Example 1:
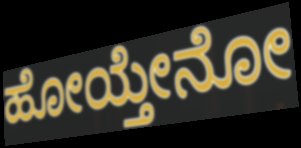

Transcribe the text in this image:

ಹೋಯ್ತೇನೋ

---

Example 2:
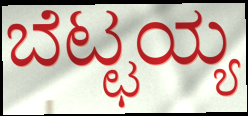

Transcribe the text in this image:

ಬೆಟ್ಟಯ್ಯ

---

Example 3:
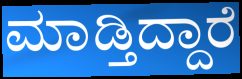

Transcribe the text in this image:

ಮಾಡ್ತಿದ್ದಾರೆ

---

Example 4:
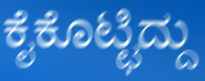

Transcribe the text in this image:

ಕೈಕೊಟ್ಟಿದ್ದು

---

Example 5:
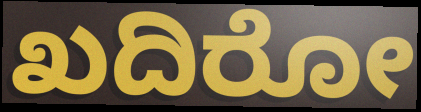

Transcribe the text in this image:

ಖದಿರೋ